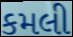
કમલી